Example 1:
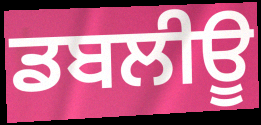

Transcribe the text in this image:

ਡਬਲੀਊ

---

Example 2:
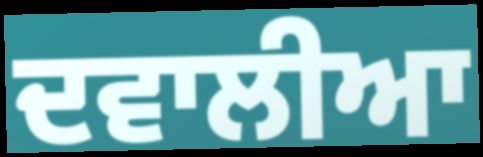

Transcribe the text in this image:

ਦਵਾਲੀਆ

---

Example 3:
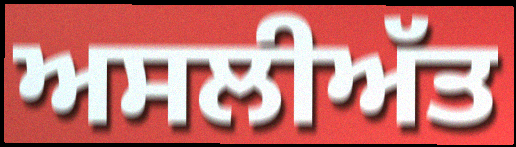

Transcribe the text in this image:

ਅਸਲੀਅੱਤ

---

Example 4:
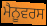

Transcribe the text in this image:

ਮੈਨੂਵਰਸ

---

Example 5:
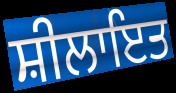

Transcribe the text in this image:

ਸ਼ੀਲਾਇਤ